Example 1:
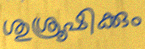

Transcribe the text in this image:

ശുശ്രൂഷിക്കും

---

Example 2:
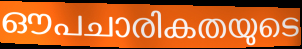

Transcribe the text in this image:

ഔപചാരികതയുടെ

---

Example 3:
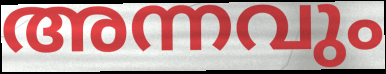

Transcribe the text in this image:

അന്നവും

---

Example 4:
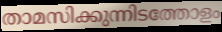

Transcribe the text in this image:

താമസിക്കുന്നിടത്തോളം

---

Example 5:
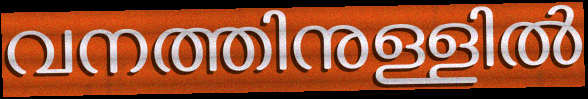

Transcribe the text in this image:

വനത്തിനുള്ളിൽ